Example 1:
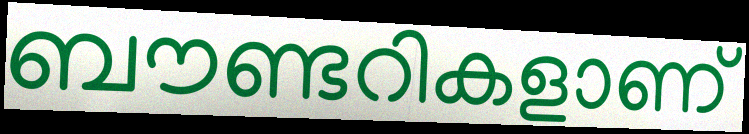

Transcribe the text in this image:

ബൗണ്ടറികളാണ്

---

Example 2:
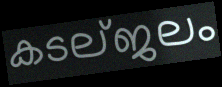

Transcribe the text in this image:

കടല്ജലം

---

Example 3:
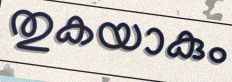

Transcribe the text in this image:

തുകയാകും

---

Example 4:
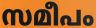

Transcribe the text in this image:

സമീപം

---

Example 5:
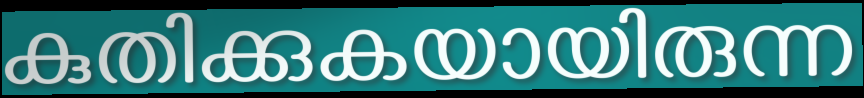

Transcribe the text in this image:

കുതിക്കുകയായിരുന്ന